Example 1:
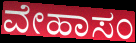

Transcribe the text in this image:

ವೇಹಾಸಂ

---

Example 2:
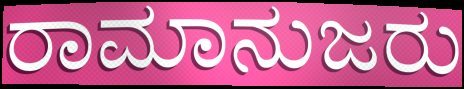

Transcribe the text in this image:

ರಾಮಾನುಜರು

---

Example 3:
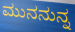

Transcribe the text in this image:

ಮುನನುನ್ನ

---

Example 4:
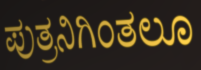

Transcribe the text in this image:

ಪುತ್ರನಿಗಿಂತಲೂ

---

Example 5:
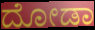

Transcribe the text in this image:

ದೋಡಾ